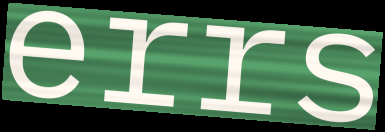
errs